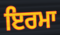
ਇਰਮਾ